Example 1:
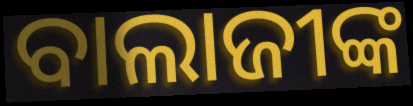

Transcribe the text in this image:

ବାଲାଜୀଙ୍କ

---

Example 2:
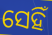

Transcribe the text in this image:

ସେହିଁ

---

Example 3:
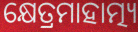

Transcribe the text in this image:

କ୍ଷେତ୍ରମାହାତ୍ମ୍ୟ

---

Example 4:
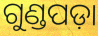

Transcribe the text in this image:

ଗୁଣ୍ଡପଡ଼ା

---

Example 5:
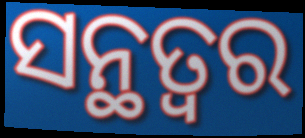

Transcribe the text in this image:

ସନ୍ଥତ୍ବର